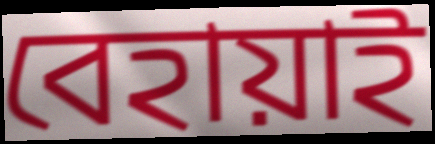
বেহায়াই